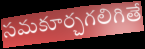
సమకూర్చగలిగితే